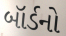
બૉર્ડનો